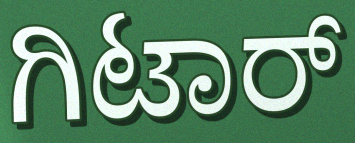
ಗಿಟಾರ್